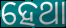
ହେଥା